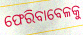
ଫେରିବାବେଳକୁ